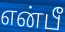
என்பீ